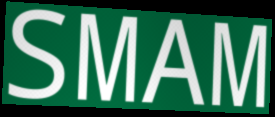
SMAM